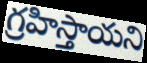
గ్రహిస్తాయని